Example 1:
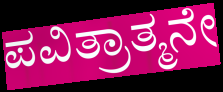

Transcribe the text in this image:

ಪವಿತ್ರಾತ್ಮನೇ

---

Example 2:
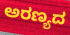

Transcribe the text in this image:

ಅರಣ್ಯದ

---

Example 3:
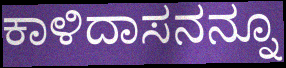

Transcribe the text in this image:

ಕಾಳಿದಾಸನನ್ನೂ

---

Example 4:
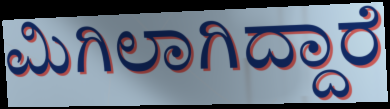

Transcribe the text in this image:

ಮಿಗಿಲಾಗಿದ್ದಾರೆ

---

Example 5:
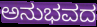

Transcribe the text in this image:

ಅನುಭವದ